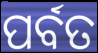
ପର୍ବତ